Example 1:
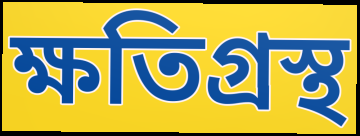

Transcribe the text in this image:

ক্ষতিগ্রস্থ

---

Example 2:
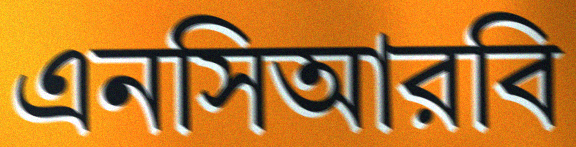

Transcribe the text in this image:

এনসিআরবি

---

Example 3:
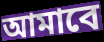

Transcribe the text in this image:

আমাবে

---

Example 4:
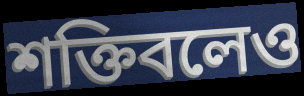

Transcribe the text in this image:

শক্তিবলেও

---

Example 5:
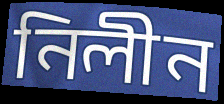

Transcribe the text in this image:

নিলীন